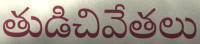
తుడిచివేతలు